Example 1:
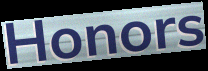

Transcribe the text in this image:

Honors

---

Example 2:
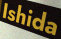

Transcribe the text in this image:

Ishida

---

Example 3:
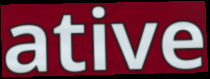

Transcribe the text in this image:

ative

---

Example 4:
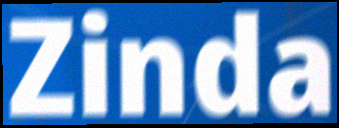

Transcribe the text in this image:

Zinda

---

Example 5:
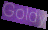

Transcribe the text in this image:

Goldy